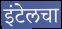
इंटेलचा